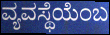
ವ್ಯವಸ್ಥೆಯೆಂಬ